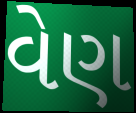
વેણ